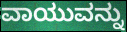
ವಾಯುವನ್ನು